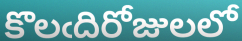
కొలఁదిరోజులలో